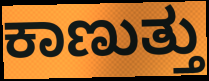
ಕಾಣುತ್ತು